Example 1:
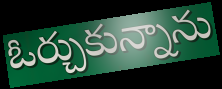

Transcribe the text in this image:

ఓర్చుకున్నాను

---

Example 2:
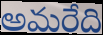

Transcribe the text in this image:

అమరేది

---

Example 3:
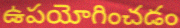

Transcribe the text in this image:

ఉపయోగించడం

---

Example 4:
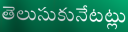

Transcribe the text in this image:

తెలుసుకునేటట్లు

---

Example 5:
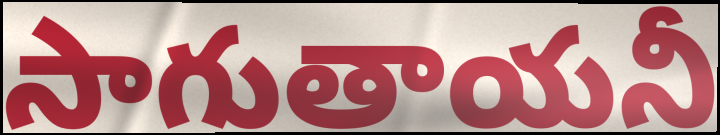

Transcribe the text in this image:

సాగుతాయనీ